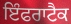
ਇੰਫਰਾਟੈਕ